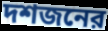
দশজনের